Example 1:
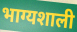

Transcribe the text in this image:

भाग्यशाली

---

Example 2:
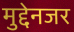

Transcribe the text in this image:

मुद्देनजर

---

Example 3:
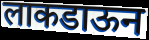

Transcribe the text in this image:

लाकडाऊन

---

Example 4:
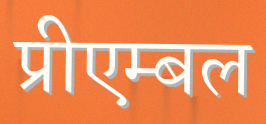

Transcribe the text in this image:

प्रीएम्बल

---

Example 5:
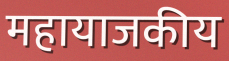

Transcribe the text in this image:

महायाजकीय